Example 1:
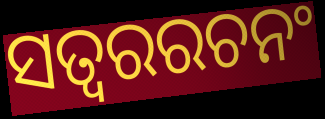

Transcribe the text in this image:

ସତ୍ୱରରଚନଂ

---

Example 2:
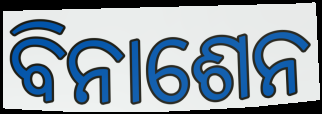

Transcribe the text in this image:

ବିନାଶେନ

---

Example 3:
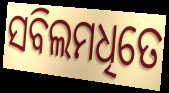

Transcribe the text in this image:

ସବିଲମଧିତେ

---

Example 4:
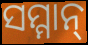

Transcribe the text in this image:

ସମ୍ମାନ୍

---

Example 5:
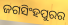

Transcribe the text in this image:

ଜଗସିଂହପୁରର